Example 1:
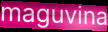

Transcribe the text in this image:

maguvina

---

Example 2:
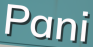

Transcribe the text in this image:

Pani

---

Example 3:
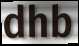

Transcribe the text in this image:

dhb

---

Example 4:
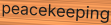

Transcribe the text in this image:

peacekeeping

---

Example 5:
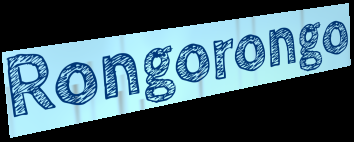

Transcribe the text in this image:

Rongorongo